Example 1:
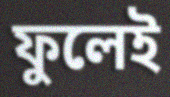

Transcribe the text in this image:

ফুলেই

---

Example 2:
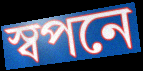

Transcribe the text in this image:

স্বপনে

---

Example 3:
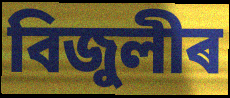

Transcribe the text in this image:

বিজুলীৰ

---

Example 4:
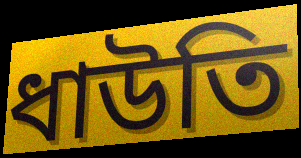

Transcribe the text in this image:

ধাউতি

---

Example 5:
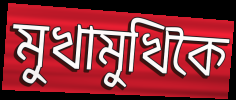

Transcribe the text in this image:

মুখামুখিকৈ